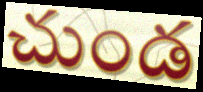
చుండ